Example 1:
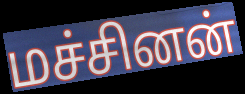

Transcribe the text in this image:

மச்சினன்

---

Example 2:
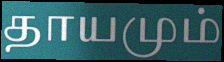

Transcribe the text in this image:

தாயமும்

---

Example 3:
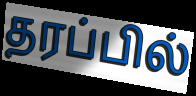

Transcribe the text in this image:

தரப்பில்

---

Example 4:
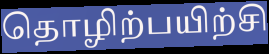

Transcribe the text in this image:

தொழிற்பயிற்சி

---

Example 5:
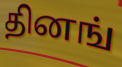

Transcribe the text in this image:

தினங்